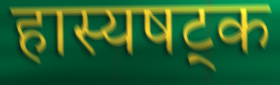
हास्यषट्क